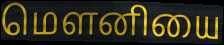
மௌனியை